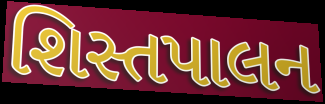
શિસ્તપાલન